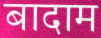
बादाम